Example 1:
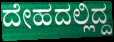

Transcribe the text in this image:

ದೇಹದಲ್ಲಿದ್ದ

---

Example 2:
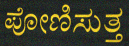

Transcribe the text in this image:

ಪೋಣಿಸುತ್ತ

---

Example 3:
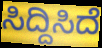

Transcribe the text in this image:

ಸಿದ್ದಿಸಿದೆ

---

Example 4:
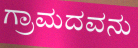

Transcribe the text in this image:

ಗ್ರಾಮದವನು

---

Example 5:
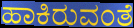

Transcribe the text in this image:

ಹಾಕಿರುವಂತೆ